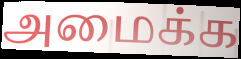
அமைக்க